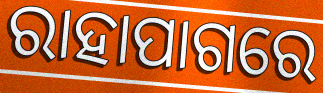
ରାହାପାଗରେ